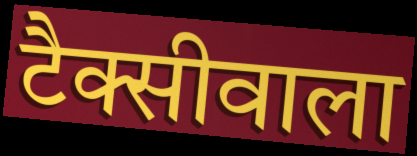
टैक्सीवाला